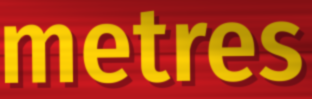
metres